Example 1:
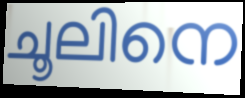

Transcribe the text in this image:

ചൂലിനെ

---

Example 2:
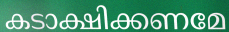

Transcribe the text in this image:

കടാക്ഷിക്കണമേ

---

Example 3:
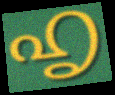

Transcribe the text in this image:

ഹൃ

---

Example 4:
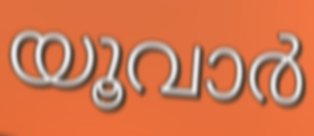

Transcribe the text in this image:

യൂവാർ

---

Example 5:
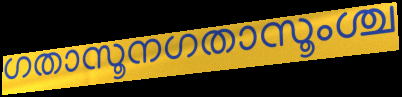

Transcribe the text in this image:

ഗതാസൂനഗതാസൂംശ്ച